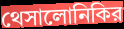
থেসালোনিকির